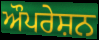
ਔਪਰੇਸ਼ਨ